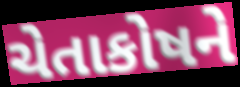
ચેતાકોષને